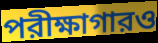
পরীক্ষাগারও